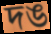
দঙ